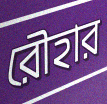
রৌহার